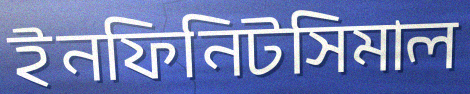
ইনফিনিটসিমাল